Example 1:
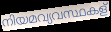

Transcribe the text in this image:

നിയമവ്യവസ്ഥകള്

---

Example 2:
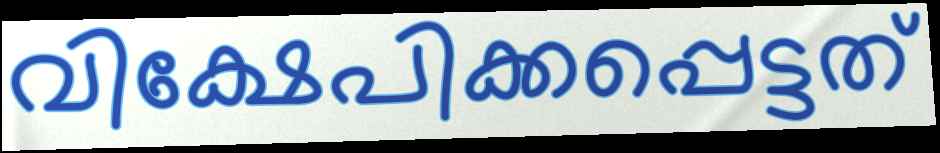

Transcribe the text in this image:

വിക്ഷേപിക്കപ്പെട്ടത്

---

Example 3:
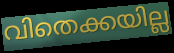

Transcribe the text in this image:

വിതെക്കയില്ല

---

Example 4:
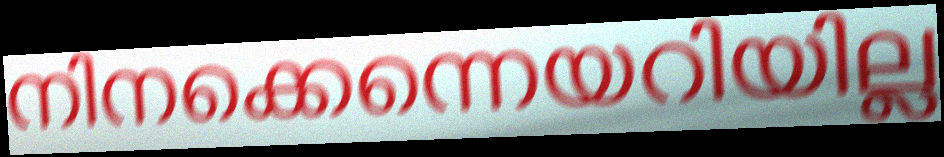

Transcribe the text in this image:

നിനക്കെന്നെയറിയില്ല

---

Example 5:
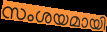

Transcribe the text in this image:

സംശയമായി